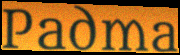
Padma